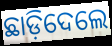
ଛାଡ଼ିଦେଲେ